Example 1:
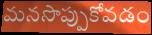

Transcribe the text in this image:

మనసొప్పుకోవడం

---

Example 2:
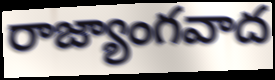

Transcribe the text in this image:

రాజ్యాంగవాద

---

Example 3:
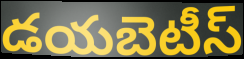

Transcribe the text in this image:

డయబెటీస్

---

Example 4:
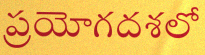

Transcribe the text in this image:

ప్రయోగదశలో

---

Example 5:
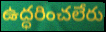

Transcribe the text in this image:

ఉద్ధరించలేరు